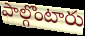
పాల్గొంటారు